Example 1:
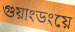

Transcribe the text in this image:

গুয়াংডংয়ে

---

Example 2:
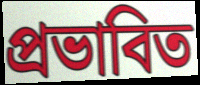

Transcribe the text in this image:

প্রভাবিত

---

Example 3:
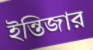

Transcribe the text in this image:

ইন্তিজার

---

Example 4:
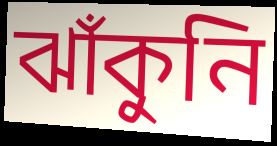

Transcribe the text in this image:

ঝাঁকুনি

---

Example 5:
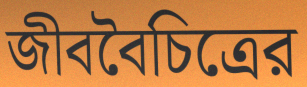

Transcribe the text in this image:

জীববৈচিত্রের